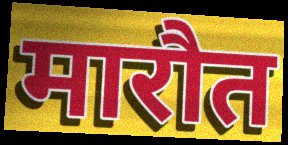
मारौत